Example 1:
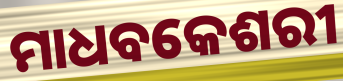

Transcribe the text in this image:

ମାଧବକେଶରୀ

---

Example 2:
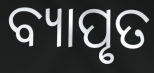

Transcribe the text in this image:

ବ୍ୟାପୃତ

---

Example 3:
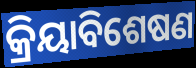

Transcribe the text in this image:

କ୍ରିୟାବିଶେଷଣ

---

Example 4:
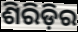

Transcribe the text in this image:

ଶିରିଡ଼ିର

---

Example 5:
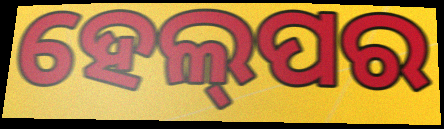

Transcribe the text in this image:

ହେଲ୍‌ପର